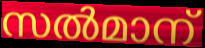
സൽമാന്